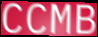
CCMB